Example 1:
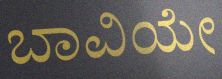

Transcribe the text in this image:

ಬಾವಿಯೇ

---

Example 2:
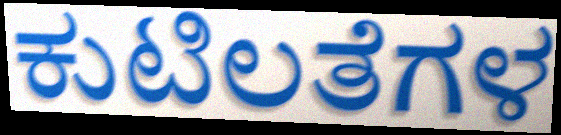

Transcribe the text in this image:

ಕುಟಿಲತೆಗಳ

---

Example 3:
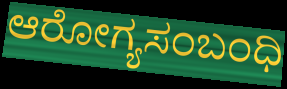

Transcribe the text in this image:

ಆರೋಗ್ಯಸಂಬಂಧಿ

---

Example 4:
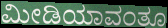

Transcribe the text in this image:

ಮೀಡಿಯಾವಂತೂ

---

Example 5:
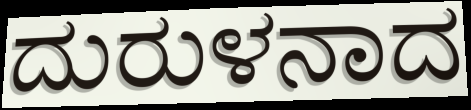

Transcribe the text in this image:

ದುರುಳನಾದ